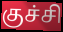
குச்சி